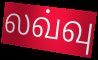
லவ்வு